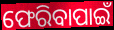
ଫେରିବାପାଇଁ